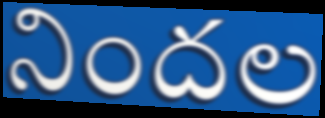
నిందల